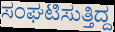
ಸಂಘಟಿಸುತ್ತಿದ್ದ